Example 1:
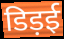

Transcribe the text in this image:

डिड़ई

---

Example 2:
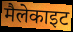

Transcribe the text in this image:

मैलेकाइट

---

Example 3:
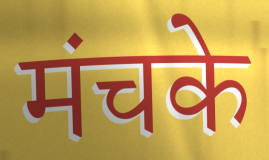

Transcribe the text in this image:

मंचके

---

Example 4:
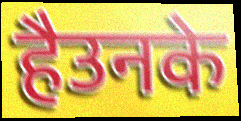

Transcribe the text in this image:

हैउनके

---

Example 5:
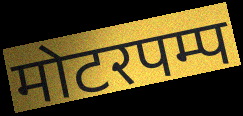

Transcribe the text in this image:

मोटरपम्प